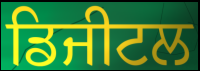
ਡਿਜੀਟਲ